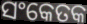
ସଂକେତକ